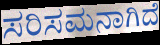
ಸರಿಸಮನಾಗಿದೆ